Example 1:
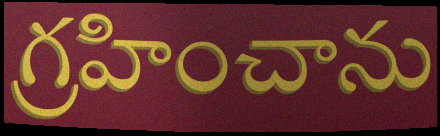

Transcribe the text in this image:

గ్రహించాను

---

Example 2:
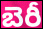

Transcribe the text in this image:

బెరీ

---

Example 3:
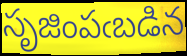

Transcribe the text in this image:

సృజింపఁబడిన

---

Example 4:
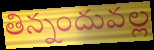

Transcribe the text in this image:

తిన్నందువల్ల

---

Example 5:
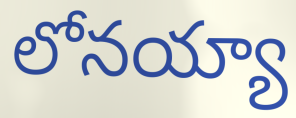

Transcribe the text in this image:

లోనయ్యా